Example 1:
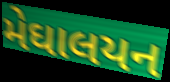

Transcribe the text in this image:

મેઘાલયન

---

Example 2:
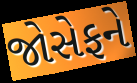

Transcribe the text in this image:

જોસેફને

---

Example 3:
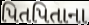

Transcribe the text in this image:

પિતપિતાના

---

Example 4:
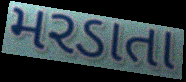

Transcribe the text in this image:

મરડાતા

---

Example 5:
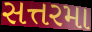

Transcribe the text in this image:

સત્તરમા